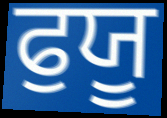
ਫੁਯੂ